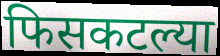
फिसकटल्या